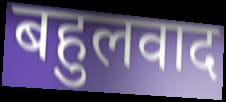
बहुलवाद